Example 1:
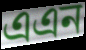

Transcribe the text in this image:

এএন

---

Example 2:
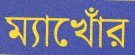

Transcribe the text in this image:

ম্যাখোঁর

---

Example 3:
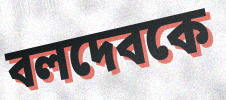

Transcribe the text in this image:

বলদেবকে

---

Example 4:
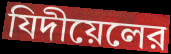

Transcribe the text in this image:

যিদীয়েলের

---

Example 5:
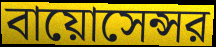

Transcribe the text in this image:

বায়োসেন্সর